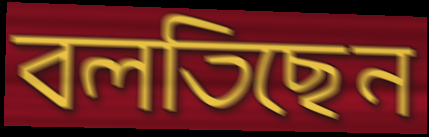
বলতিছেন